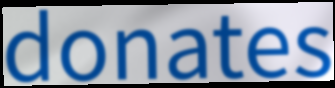
donates